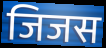
जिजस